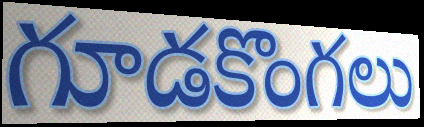
గూడకొంగలు